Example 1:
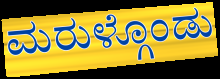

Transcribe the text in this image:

ಮರುಳ್ಗೊಂಡು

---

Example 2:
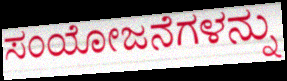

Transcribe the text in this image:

ಸಂಯೋಜನೆಗಳನ್ನು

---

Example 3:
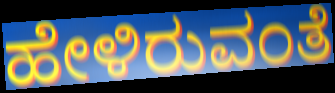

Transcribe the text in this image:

ಹೇಳಿರುವಂತೆ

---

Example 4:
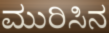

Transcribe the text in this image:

ಮುರಿಸಿನ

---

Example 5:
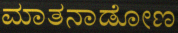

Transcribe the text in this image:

ಮಾತನಾಡೋಣ